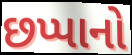
છપ્પાનો